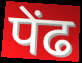
पेंढ